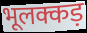
भूलक्कड़